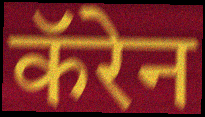
कॅरेन